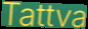
Tattva